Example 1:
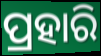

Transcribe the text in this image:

ପ୍ରହାରି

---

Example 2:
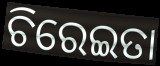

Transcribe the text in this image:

ଚିରେଇତା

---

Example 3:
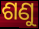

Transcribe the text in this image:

ଶଣୁ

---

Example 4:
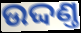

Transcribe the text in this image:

ଉଦ୍ଦଣ୍ତ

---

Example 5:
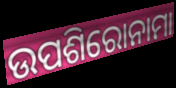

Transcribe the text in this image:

ଉପଶିରୋନାମା